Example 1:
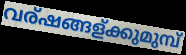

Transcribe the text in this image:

വര്ഷങ്ങള്ക്കുമുമ്പ്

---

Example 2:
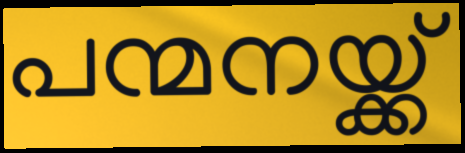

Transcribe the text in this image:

പന്മനയ്ക്ക്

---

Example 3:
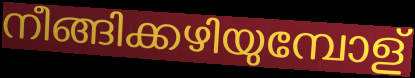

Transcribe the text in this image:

നീങ്ങിക്കഴിയുമ്പോള്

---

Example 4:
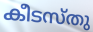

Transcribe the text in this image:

കീടസ്തു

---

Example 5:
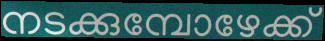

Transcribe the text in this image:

നടക്കുമ്പോഴേക്ക്